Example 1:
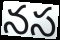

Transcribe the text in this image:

నస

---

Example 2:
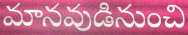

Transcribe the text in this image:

మానవుడినుంచి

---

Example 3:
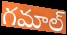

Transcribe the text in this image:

గమాల్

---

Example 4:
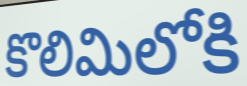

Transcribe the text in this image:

కొలిమిలోకి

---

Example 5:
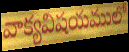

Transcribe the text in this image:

వాక్యవిషయములో